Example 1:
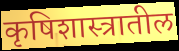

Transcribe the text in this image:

कृषिशास्त्रातील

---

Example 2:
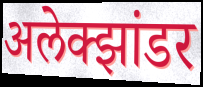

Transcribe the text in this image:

अलेक्झांडर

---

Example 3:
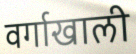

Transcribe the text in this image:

वर्गाखाली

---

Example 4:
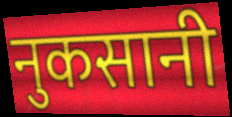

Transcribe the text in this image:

नुकसानी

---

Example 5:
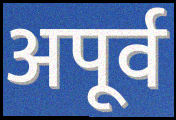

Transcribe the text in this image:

अपूर्व